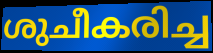
ശുചീകരിച്ച